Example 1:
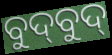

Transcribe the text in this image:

ବୁଦ୍‍ବୁଦ୍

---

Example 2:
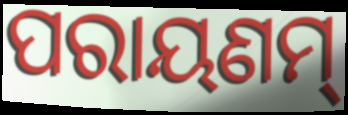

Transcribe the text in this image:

ପରାୟଣମ୍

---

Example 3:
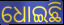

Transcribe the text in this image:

ଧୋଇଛି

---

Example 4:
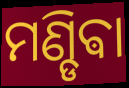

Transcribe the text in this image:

ମଣ୍ଡିଵା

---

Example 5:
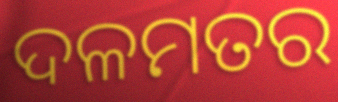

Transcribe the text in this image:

ଦଳମତର